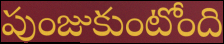
పుంజుకుంటోంది